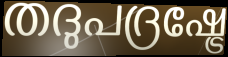
തദുപദ്രഷ്ട്രേ